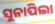
ସୁନାପିଲା